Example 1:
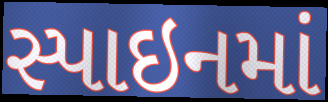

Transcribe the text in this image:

સ્પાઇનમાં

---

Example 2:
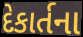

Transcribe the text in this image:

દેકાર્તના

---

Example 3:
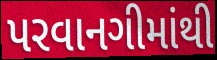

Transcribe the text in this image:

પરવાનગીમાંથી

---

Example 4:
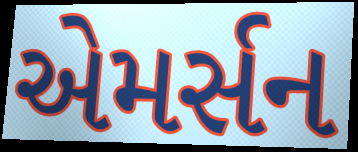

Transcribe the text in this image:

એમર્સન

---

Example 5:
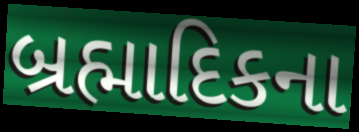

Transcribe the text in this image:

બ્રહ્માદિકના